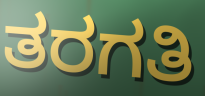
ತರಗತಿ